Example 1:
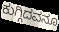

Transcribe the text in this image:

ಕುಗ್ಗಿದವನೂ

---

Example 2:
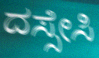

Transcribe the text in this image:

ದಸ್ಸೇಸಿ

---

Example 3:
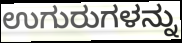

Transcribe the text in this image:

ಉಗುರುಗಳನ್ನು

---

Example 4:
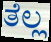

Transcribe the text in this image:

ತೆಲ್ಲ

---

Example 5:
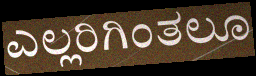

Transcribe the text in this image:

ಎಲ್ಲರಿಗಿಂತಲೂ